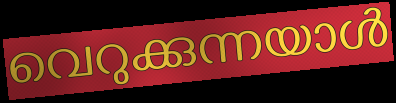
വെറുക്കുന്നയാൾ